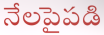
నేలపైపడి